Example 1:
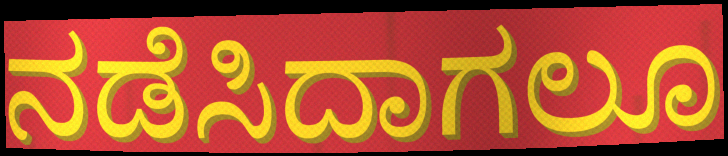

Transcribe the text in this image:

ನಡೆಸಿದಾಗಲೂ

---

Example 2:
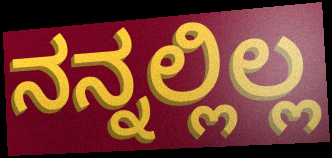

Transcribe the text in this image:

ನನ್ನಲ್ಲಿಲ್ಲ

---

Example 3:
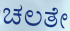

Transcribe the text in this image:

ಚಲತೇ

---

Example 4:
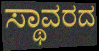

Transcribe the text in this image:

ಸ್ಥಾವರದ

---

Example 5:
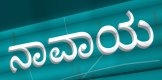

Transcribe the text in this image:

ನಾವಾಯ